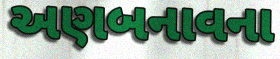
અણબનાવના